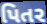
પિતર